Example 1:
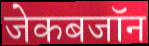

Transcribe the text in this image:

जेकबजॉन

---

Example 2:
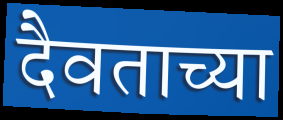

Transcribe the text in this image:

दैवताच्या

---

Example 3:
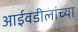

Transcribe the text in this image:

आईवडीलांच्या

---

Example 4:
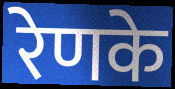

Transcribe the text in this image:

रेणके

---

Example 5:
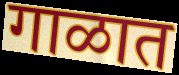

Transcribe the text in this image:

गाळात